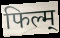
फिल्म्